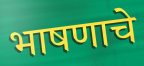
भाषणाचे